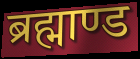
ब्रह्माण्ड